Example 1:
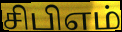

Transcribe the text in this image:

சிபிஎம்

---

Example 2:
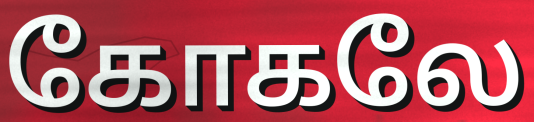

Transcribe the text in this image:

கோகலே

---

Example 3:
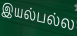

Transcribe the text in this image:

இயல்பல்ல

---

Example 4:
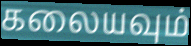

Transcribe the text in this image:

கலையவும்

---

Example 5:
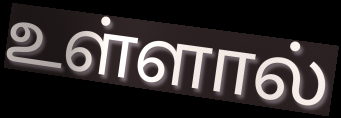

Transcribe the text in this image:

உள்ளால்